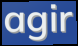
agir